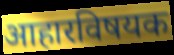
आहारविषयक